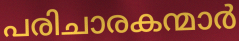
പരിചാരകന്മാർ